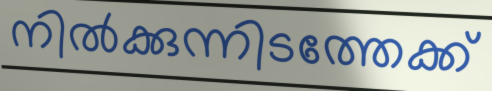
നിൽക്കുന്നിടത്തേക്ക്